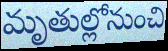
మృతుల్లోనుంచి